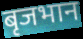
बृजभान